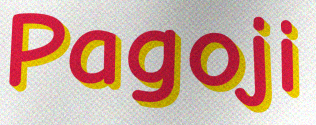
Pagoji